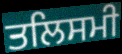
ਤਲਿਸਮੀ